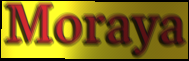
Moraya